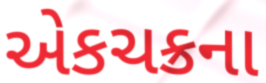
એકચક્રના